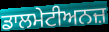
ਡਾਲਮੇਟੀਅਨਜ਼